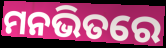
ମନଭିତରେ